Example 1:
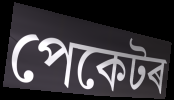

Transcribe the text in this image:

পেকেটৰ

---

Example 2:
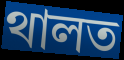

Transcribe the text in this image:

থালত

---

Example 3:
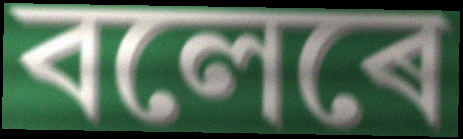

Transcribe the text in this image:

বলেৰে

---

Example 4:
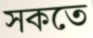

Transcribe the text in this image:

সকতে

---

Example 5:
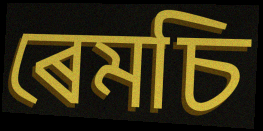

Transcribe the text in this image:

ৰেমচি